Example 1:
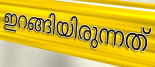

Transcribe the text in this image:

ഇറങ്ങിയിരുന്നത്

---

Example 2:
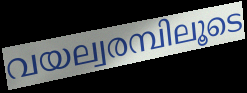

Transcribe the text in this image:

വയല്വരമ്പിലൂടെ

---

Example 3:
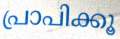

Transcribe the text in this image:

പ്രാപിക്കൂ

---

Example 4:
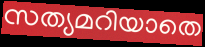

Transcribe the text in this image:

സത്യമറിയാതെ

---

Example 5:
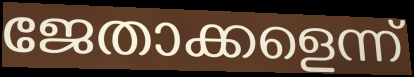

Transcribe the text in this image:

ജേതാക്കളെന്ന്